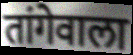
तांगेवाला